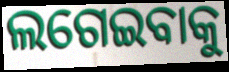
ଲଗେଇବାକୁ